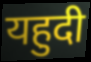
यहुदी